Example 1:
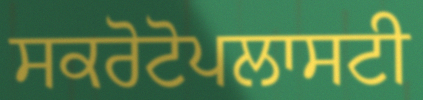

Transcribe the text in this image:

ਸਕਰੋਟੋਪਲਾਸਟੀ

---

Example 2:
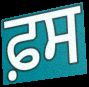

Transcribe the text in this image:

ਫ਼ਸ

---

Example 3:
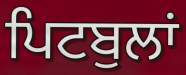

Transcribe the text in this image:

ਪਿਟਬੁਲਾਂ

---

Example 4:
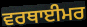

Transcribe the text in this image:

ਵਰਥਾਈਮਰ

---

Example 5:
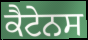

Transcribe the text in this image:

ਕੈਟੇਨਸ